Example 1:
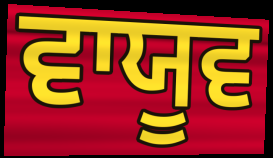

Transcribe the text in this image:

ਵਾਯੂਵ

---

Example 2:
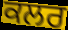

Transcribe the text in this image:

ਕਲਰ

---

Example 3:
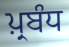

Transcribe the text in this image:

ਪ਼੍ਰਬੰਧ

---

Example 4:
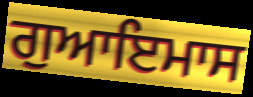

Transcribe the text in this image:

ਗੁਆਇਮਾਸ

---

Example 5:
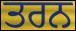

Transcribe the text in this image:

ਤਰਨ